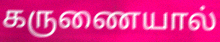
கருணையால்